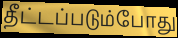
தீட்டப்படும்போது